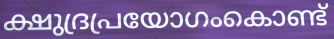
ക്ഷുദ്രപ്രയോഗംകൊണ്ട്